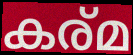
കര്മ